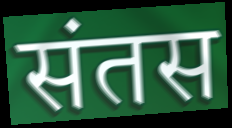
संतस